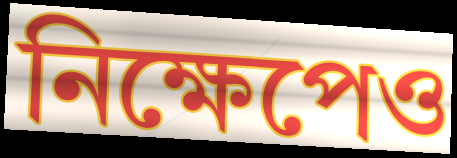
নিক্ষেপেও